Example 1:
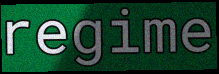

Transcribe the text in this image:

regime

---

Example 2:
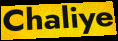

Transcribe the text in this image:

Chaliye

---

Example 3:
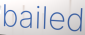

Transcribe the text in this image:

bailed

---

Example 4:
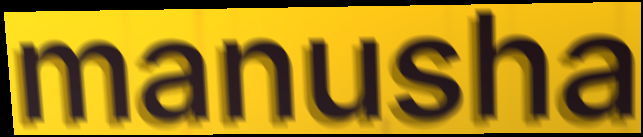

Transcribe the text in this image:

manusha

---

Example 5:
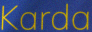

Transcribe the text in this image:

Karda